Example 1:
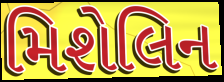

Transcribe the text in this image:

મિશેલિન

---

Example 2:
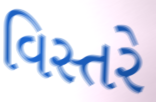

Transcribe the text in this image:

વિસ્તરે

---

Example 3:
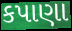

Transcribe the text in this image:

કપાણા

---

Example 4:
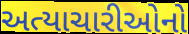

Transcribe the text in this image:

અત્યાચારીઓનો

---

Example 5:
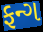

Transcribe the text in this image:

ફન્ગ